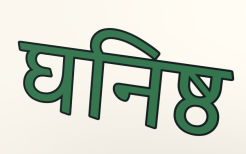
घनिष्ठ